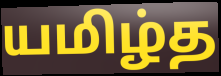
யமிழ்த